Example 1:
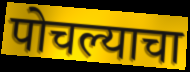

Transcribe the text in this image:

पोचल्याचा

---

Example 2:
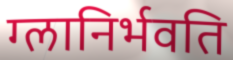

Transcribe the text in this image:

ग्लानिर्भवति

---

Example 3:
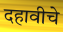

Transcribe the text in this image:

दहावीचे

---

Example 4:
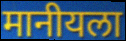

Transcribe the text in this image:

मानीयला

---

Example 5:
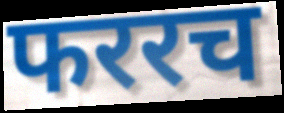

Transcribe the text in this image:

फररच